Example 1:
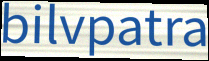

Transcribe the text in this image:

bilvpatra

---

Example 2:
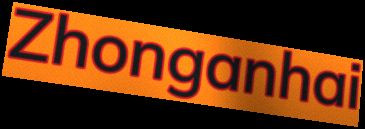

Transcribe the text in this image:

Zhonganhai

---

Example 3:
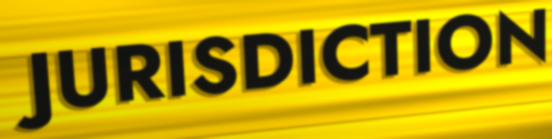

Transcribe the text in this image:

JURISDICTION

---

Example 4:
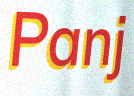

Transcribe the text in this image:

Panj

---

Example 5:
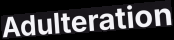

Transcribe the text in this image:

Adulteration